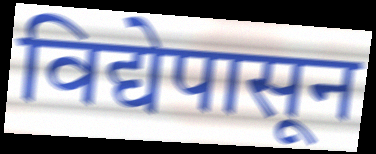
विद्येपासून